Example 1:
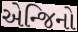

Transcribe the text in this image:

એન્જિનો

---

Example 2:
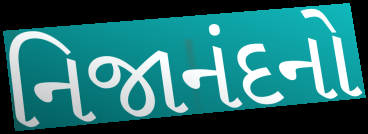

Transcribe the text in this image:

નિજાનંદનો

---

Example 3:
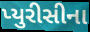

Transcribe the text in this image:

પ્યુરીસીના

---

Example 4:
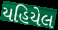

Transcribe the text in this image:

યહિયેલ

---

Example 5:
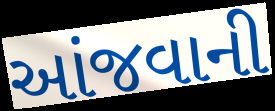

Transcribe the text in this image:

આંજવાની